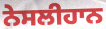
ਨੇਸਲੀਹਾਨ